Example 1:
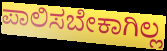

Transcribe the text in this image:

ಪಾಲಿಸಬೇಕಾಗಿಲ್ಲ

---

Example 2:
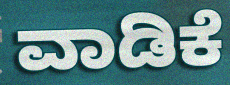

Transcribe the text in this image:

ವಾಡಿಕೆ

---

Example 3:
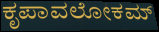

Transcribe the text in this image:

ಕೃಪಾವಲೋಕಮ್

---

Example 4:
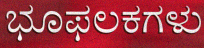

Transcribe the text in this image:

ಭೂಫಲಕಗಳು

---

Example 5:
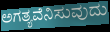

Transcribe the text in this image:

ಅಗತ್ಯವೆನಿಸುವುದು